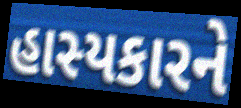
હાસ્યકારને